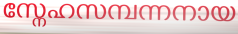
സ്നേഹസമ്പന്നനായ